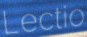
Lectio